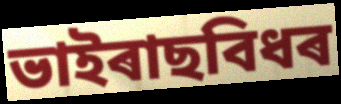
ভাইৰাছবিধৰ